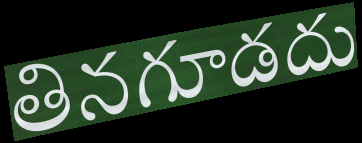
తినగూడదు